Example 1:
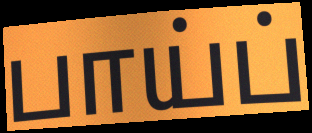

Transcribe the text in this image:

பாய்ப்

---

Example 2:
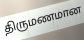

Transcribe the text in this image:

திருமணமான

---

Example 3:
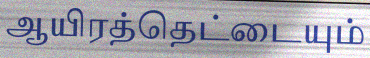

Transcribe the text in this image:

ஆயிரத்தெட்டையும்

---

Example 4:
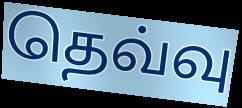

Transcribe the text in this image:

தெவ்வு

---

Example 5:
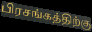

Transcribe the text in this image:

பிரசங்கத்திற்கு